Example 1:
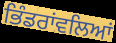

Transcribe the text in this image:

ਭਿੰਡਰਾਂਵਲਿਆਂ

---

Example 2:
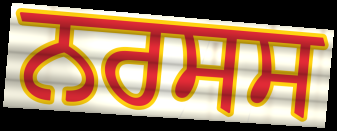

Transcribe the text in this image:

ਨਰਸਸ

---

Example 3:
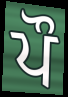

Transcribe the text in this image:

ਪੌ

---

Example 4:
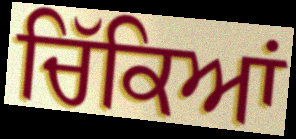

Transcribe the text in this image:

ਚਿੱਕਿਆਂ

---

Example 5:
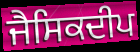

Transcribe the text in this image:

ਜੈਸਿਕਦੀਪ